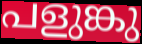
പളുങ്കു